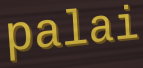
palai